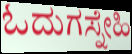
ಓದುಗಸ್ನೇಹಿ